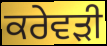
ਕਰੇਵੜੀ